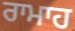
ਰਾਮਾਹ